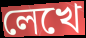
লেখে